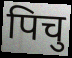
पिचु